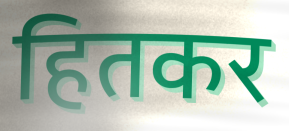
हितकर